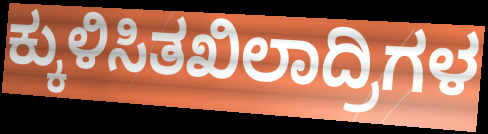
ಕ್ಕುಳಿಸಿತಖಿಲಾದ್ರಿಗಳ